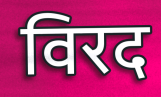
विरद